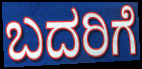
ಬದರಿಗೆ